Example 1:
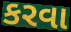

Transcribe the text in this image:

કરવા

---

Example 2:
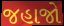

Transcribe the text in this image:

જહાજો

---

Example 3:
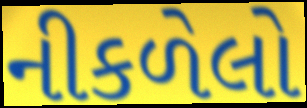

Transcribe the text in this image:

નીકળેલો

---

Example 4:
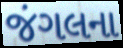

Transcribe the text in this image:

જંગલના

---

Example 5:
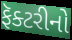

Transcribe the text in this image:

ફૅક્ટરીનો